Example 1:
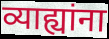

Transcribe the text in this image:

व्याह्यांना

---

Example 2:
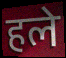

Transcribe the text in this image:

हले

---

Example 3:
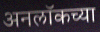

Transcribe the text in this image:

अनलॉकच्या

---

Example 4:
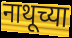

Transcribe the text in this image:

नाथूच्या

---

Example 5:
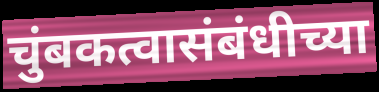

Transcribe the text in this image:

चुंबकत्वासंबंधीच्या